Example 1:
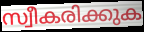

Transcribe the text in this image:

സ്വീകരിക്കുക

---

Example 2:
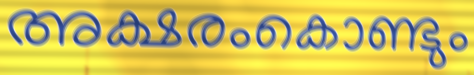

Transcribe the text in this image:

അക്ഷരംകൊണ്ടും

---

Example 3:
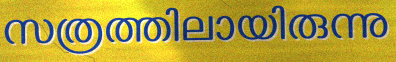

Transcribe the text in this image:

സത്രത്തിലായിരുന്നു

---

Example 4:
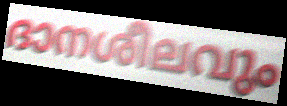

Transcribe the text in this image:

ദാനശീലവും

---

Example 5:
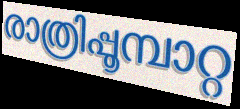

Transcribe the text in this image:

രാത്രിപ്പൂമ്പാറ്റ